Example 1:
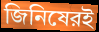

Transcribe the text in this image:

জিনিষেরই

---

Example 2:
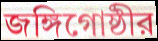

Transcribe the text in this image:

জঙ্গিগোষ্ঠীর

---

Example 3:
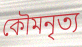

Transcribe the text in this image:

কৌমনৃত্য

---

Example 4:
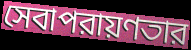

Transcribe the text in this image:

সেবাপরায়ণতার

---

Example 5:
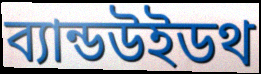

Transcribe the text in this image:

ব্যান্ডউইডথ